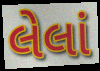
લેલાં